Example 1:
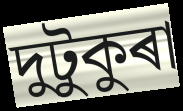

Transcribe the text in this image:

দুটুকুৰা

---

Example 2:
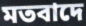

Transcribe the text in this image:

মতবাদে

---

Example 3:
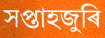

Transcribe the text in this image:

সপ্তাহজুৰি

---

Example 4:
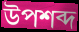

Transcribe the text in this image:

উপশব্দ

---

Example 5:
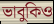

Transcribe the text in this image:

ভাবুকিও